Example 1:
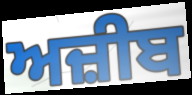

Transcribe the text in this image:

ਅਜ਼ੀਬ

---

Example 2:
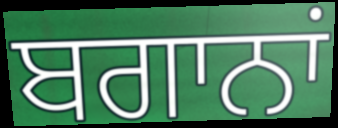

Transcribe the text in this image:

ਬਗਾਨਾਂ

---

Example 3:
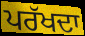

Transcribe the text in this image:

ਪਰੱਖਦਾ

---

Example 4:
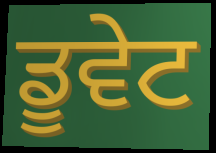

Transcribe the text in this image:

ਡੂਵੇਟ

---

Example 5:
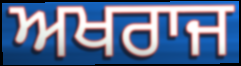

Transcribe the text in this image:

ਅਖਰਾਜ